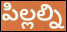
పిల్లల్ని